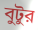
বুটুর